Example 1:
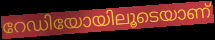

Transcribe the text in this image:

റേഡിയോയിലൂടെയാണ്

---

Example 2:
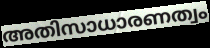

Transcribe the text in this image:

അതിസാധാരണത്വം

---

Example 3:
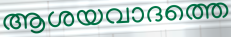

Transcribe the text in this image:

ആശയവാദത്തെ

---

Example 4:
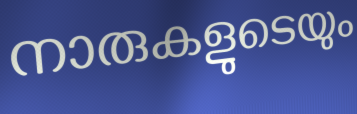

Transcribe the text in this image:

നാരുകളുടെയും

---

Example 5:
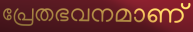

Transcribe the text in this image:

പ്രേതഭവനമാണ്